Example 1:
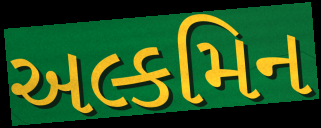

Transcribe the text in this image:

અલ્કમિન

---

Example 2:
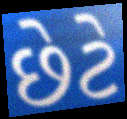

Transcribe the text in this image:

છેટે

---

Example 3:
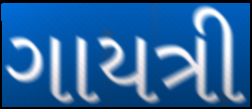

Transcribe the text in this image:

ગાયત્રી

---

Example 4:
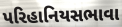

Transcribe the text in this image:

પરિહાનિયસભાવા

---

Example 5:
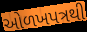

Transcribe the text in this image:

ઓળખપત્રથી